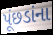
પૂંછડાંના